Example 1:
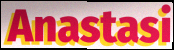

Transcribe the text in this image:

Anastasi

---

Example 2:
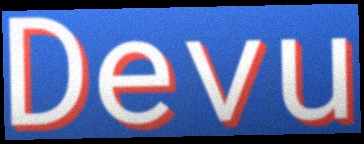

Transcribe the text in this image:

Devu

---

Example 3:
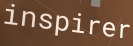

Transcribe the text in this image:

inspirer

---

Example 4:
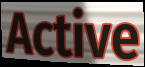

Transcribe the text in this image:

Active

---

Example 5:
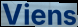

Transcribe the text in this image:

Viens